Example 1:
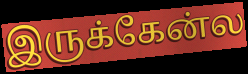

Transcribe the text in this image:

இருக்கேன்ல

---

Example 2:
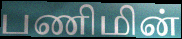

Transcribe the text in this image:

பணிமின்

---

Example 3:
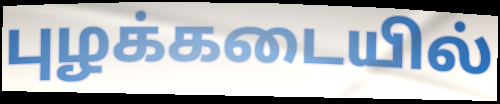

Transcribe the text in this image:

புழக்கடையில்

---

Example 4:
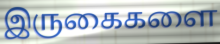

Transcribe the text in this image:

இருகைகளை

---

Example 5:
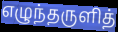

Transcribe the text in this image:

எழுந்தருளித்